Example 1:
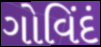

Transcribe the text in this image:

ગોવિંદં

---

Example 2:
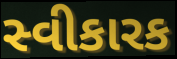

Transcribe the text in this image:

સ્વીકારક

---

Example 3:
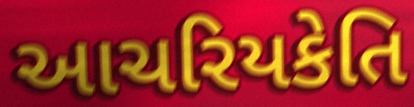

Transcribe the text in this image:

આચરિયકેતિ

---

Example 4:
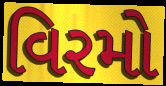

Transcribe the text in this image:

વિરમો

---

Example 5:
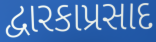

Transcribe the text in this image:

દ્વારકાપ્રસાદ